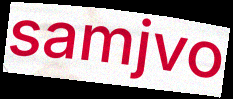
samjvo